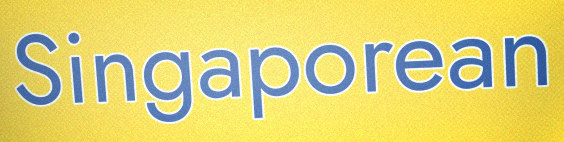
Singaporean